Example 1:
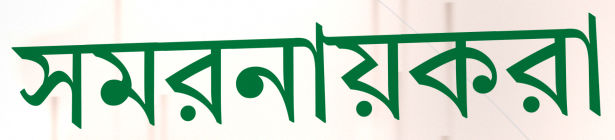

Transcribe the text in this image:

সমরনায়করা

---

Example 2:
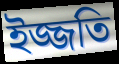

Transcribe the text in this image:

ইজ্জতি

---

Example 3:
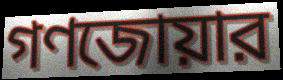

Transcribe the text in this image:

গণজোয়ার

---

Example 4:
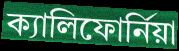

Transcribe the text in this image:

ক্যালিফোর্নিয়া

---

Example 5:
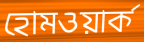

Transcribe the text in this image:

হোমওয়ার্ক